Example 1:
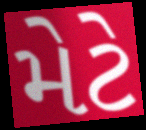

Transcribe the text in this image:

મેટે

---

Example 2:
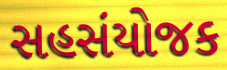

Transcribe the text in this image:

સહસંયોજક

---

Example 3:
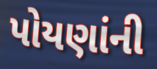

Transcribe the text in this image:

પોયણાંની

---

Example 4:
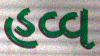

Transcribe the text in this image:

હવ્વ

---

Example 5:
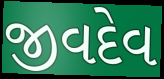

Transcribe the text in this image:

જીવદેવ